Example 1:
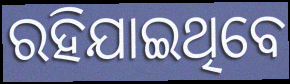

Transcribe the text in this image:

ରହିଯାଇଥିବେ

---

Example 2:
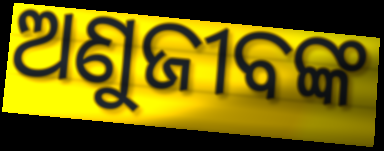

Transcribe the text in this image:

ଅଣୁଜୀବଙ୍କ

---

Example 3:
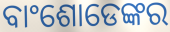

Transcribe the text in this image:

ବାଂଶୋଡେଙ୍କର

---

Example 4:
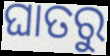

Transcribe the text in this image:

ଘାତରୁ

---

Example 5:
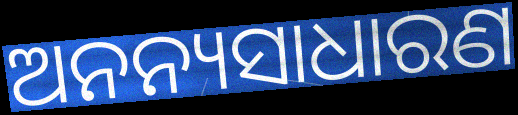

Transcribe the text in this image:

ଅନନ୍ୟସାଧାରଣ